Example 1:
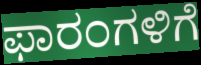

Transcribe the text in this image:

ಫಾರಂಗಳಿಗೆ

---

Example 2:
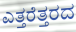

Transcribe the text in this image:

ಎತ್ತರೆತ್ತರದ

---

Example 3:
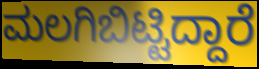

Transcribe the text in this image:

ಮಲಗಿಬಿಟ್ಟಿದ್ದಾರೆ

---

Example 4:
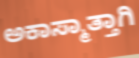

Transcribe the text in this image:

ಅಕಾಸ್ಮಾತ್ತಾಗಿ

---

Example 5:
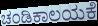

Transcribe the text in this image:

ಚಂಡಿಕಾಲಯಕೆ